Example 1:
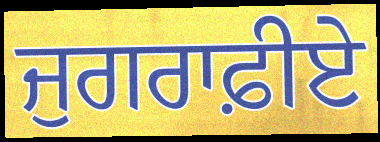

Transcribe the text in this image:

ਜੁਗਰਾਫ਼ੀਏ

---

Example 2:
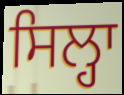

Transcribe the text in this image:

ਸਿਲ੍ਹਾ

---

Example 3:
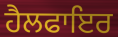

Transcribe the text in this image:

ਹੈਲਫਾਇਰ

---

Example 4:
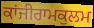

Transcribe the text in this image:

ਕਾਂਜੀਰਾਮਕੁਲਮ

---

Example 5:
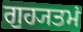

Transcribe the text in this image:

ਗੁਹ੍ਯਤਮਂ